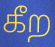
கீற